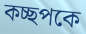
কচ্ছপকে